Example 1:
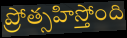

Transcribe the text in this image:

ప్రోత్సహిస్తోంది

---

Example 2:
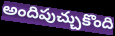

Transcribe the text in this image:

అందిపుచ్చుకొంది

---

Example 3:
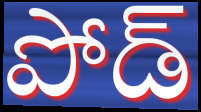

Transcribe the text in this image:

పోడ్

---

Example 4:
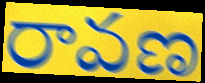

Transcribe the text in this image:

రావణ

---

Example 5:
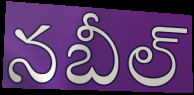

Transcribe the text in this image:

నబీల్